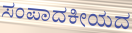
ಸಂಪಾದಕೀಯದ